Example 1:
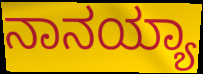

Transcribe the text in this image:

ನಾನಯ್ಯಾ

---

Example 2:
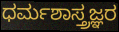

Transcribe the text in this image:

ಧರ್ಮಶಾಸ್ತ್ರಜ್ಞರ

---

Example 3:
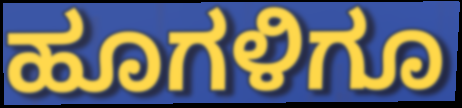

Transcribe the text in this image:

ಹೂಗಳಿಗೂ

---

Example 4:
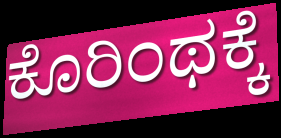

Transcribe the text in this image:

ಕೊರಿಂಥಕ್ಕೆ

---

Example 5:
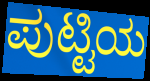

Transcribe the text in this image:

ಪುಟ್ಟಿಯ